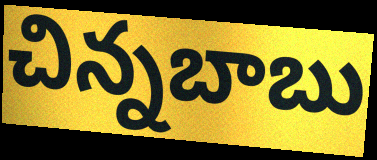
చిన్నబాబు